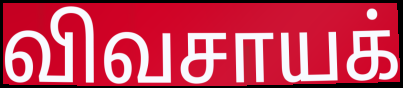
விவசாயக்